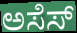
ಅಸೆಸ್